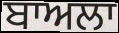
ਬਾਅਲਾ